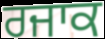
ਰਜਾਕ